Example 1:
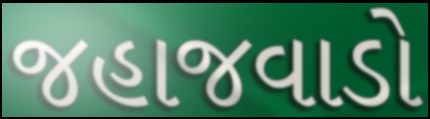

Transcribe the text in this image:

જહાજવાડો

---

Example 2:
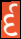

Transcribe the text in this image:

ર્દ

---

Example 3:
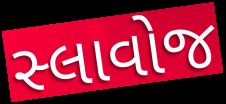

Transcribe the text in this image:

સ્લાવોજ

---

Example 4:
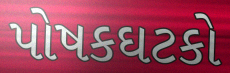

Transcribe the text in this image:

પોષકઘટકો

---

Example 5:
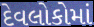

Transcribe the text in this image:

દેવલોકોમાં